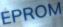
EPROM